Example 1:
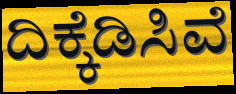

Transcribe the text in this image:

ದಿಕ್ಕೆಡಿಸಿವೆ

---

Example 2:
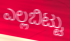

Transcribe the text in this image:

ಎಲ್ಲಬಿಟ್ಟು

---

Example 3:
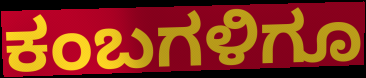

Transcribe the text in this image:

ಕಂಬಗಳಿಗೂ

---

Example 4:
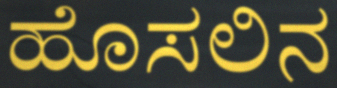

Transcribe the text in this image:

ಹೊಸಲಿನ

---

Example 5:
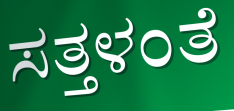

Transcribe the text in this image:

ಸತ್ತಳಂತೆ